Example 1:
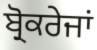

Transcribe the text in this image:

ਬ੍ਰੋਕਰੇਜਾਂ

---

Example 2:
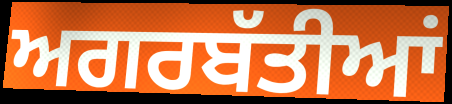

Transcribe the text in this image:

ਅਗਰਬੱਤੀਆਂ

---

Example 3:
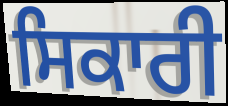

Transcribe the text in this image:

ਸਿਕਾਰੀ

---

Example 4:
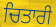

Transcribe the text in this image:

ਚਿਤਾਰੀ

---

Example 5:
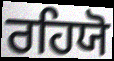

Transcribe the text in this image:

ਰਹਿਯੋ